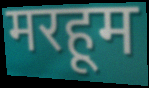
मरहूम